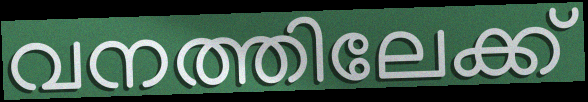
വനത്തിലേക്ക്